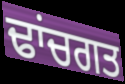
ਢਾਂਚਗਤ